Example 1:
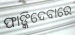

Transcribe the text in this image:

ଫାଙ୍କିଦେବାରେ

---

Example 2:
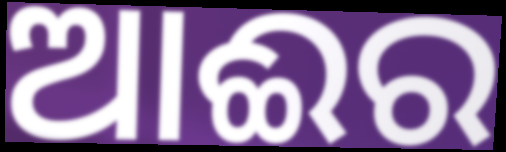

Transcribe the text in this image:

ଆଈର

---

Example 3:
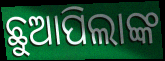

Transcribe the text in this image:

ଛୁଆପିଲାଙ୍କ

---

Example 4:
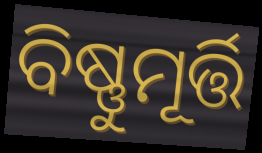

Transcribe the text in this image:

ବିଷ୍ଣୁମୂର୍ତ୍ତି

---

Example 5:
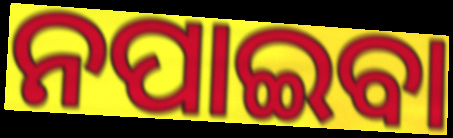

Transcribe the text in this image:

ନପାଇବା